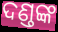
ଦଣ୍ଡଙ୍କ